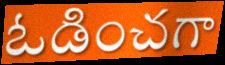
ఓడించగా